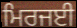
ਮਿਰਜਈ